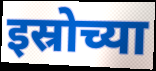
इस्रोच्या